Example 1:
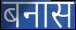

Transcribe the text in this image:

बनास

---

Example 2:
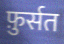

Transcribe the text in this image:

फ़ुर्सत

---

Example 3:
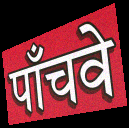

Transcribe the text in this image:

पाँचवे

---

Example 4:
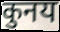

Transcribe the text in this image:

कुनय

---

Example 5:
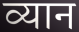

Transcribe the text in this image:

व्यान